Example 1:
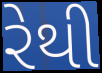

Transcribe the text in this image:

રેથી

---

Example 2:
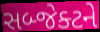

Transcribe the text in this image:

સબ્જેક્ટને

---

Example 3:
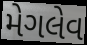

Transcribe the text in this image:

મેગલેવ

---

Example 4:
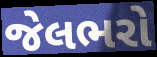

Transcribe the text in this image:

જેલભરો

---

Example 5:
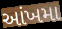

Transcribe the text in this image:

આંખમા